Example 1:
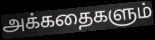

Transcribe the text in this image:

அக்கதைகளும்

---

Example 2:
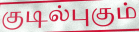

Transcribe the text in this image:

குடில்புகும்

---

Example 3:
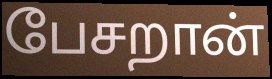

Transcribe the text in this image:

பேசறான்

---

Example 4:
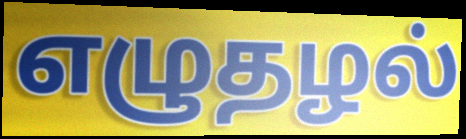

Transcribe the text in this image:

எழுதழல்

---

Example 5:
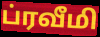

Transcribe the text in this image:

ப்ரவீமி